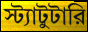
স্ট্যাটুটারি